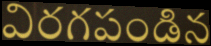
విరగపండిన